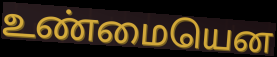
உண்மையென